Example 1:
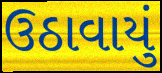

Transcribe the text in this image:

ઉઠાવાયું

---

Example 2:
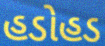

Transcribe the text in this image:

હડોહડ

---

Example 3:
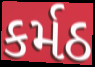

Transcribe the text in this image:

કર્મઠ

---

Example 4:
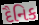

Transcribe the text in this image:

દૈનિક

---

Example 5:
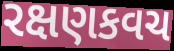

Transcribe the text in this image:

રક્ષણકવચ